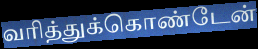
வரித்துக்கொண்டேன்